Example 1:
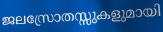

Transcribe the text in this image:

ജലസ്രോതസ്സുകളുമായി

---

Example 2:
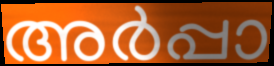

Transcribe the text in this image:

അർപ്പാ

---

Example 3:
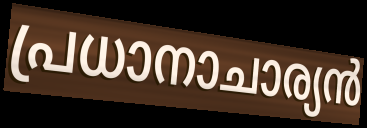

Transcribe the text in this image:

പ്രധാനാചാര്യൻ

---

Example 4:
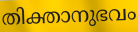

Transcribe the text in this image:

തിക്താനുഭവം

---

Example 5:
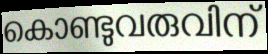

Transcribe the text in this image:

കൊണ്ടുവരുവിന്